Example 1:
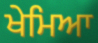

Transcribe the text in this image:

ਖੇਮਿਆ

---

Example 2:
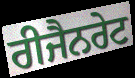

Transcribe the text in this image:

ਰੀਜੈਨਰੇਟ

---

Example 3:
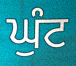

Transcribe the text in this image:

ਘੁੰਟ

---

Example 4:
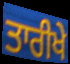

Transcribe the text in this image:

ਤਾਰੀਖੇ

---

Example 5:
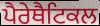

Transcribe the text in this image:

ਪੈਰੇਥੈਟਿਕਲ